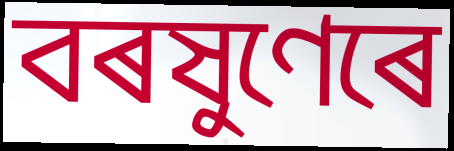
বৰষুণেৰে